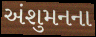
અંશુમનના